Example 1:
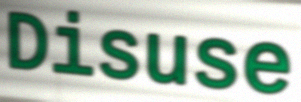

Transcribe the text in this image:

Disuse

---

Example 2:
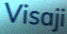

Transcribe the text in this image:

Visaji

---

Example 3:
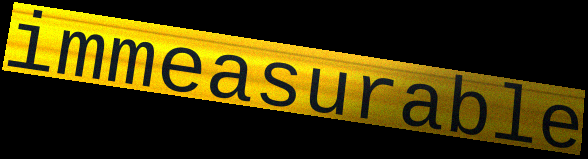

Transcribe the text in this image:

immeasurable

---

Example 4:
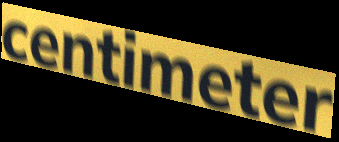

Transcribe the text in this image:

centimeter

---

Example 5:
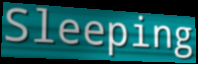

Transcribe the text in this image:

Sleeping